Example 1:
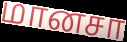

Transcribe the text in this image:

மானசா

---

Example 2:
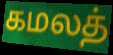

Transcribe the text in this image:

கமலத்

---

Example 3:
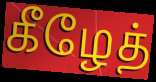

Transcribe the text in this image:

கீழேத்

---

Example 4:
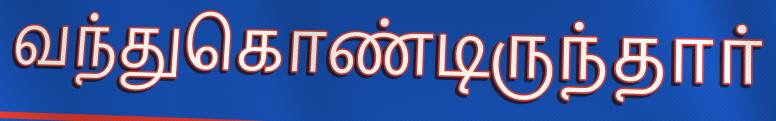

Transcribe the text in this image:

வந்துகொண்டிருந்தார்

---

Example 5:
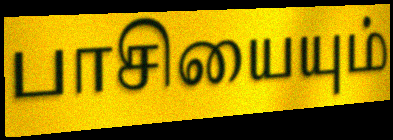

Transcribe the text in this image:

பாசியையும்